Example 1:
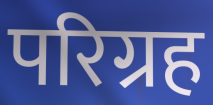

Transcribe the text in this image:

परिग्रह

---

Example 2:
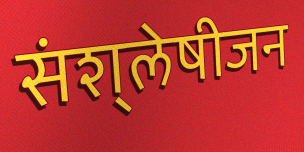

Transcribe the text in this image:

संश्लेषीजन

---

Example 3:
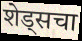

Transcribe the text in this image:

शेड्सचा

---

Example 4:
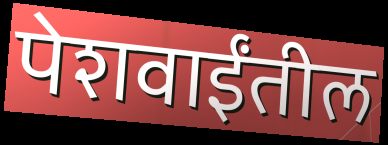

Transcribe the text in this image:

पेशवाईंतील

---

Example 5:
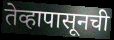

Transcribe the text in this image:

तेव्हापासूनची